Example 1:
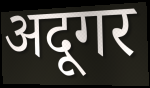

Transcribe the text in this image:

अदूगर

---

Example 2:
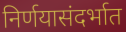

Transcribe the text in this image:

निर्णयासंदर्भात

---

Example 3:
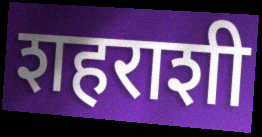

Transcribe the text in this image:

शहराशी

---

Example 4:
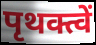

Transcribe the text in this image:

पृथक्त्वें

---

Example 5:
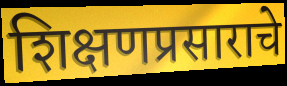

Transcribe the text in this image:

शिक्षणप्रसाराचे